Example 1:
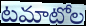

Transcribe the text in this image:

టమాటోల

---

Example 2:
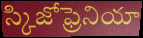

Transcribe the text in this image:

స్కిజోఫ్రెనియా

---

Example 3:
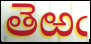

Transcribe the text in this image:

తెఱఁ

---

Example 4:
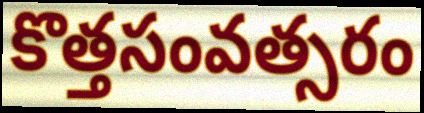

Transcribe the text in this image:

కొత్తసంవత్సరం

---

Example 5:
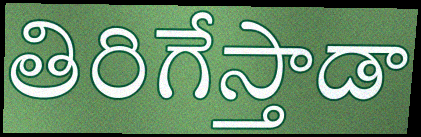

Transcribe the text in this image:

తిరిగేస్తాడా